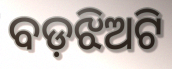
ବଡ଼ଝିଅଟି